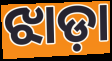
ଝାଡ଼ା